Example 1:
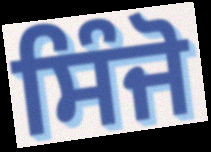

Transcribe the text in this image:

ਸਿੰਜੋ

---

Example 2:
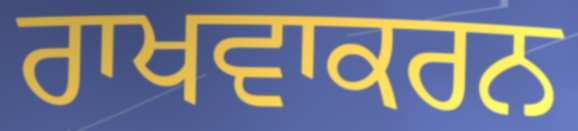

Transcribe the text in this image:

ਰਾਖਵਾਕਰਨ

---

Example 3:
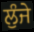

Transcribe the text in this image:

ਲੁੰਜੇ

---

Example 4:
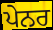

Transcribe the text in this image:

ਪੇਨਰ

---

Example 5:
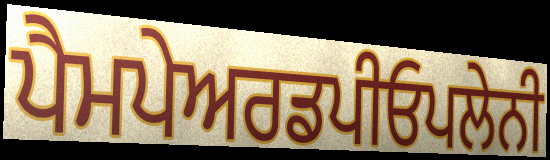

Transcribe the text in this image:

ਪੈਮਪੇਅਰਡਪੀਓਪਲੇਨੀ